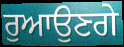
ਰੁਆਉਣਗੇ